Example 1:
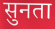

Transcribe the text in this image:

सुनता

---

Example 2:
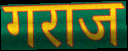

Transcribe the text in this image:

गराज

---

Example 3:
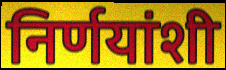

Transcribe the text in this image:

निर्णयांशी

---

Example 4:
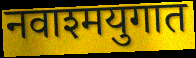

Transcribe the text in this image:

नवाश्मयुगात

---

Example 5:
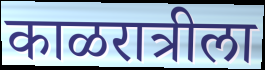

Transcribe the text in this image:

काळरात्रीला